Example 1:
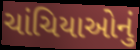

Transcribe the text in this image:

ચાંચિયાઓનું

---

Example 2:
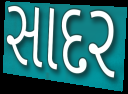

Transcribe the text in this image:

સાદર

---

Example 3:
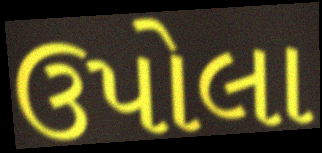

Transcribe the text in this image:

ઉપોલા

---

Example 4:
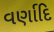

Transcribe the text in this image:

વર્ણાદિ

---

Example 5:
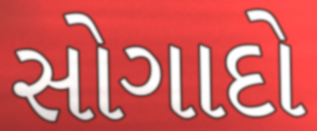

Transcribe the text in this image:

સોગાદો